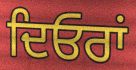
ਦਿਓਰਾਂ